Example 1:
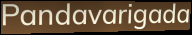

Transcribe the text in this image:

Pandavarigada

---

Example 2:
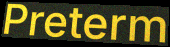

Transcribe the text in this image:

Preterm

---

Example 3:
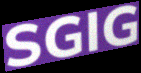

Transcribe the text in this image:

SGIG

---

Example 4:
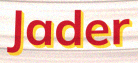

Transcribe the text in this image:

Jader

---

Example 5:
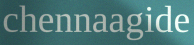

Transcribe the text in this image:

chennaagide